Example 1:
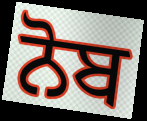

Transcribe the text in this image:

ਨੋਬ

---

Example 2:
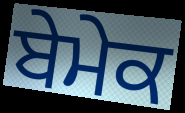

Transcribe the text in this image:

ਬੇਮੇਕ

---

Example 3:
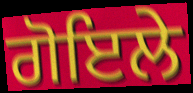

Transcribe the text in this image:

ਗੋਇਲੇ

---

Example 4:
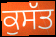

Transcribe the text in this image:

ਕੁਸੱਤ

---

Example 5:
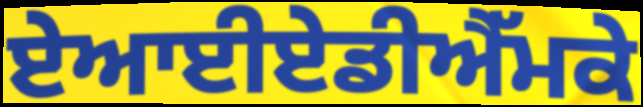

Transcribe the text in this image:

ਏਆਈਏਡੀਐੱਮਕੇ